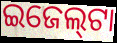
ଇଜେଲ୍‍ଟା